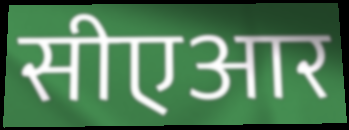
सीएआर